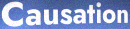
Causation